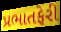
પ્રભાતફેરી